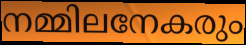
നമ്മിലനേകരും